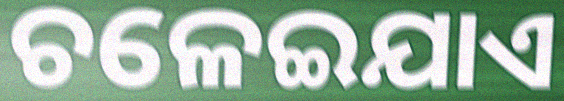
ଚଳେଇଯାଏ